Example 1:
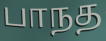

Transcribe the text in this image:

பாநத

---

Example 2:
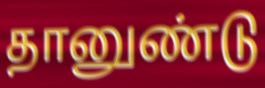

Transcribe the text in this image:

தானுண்டு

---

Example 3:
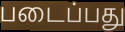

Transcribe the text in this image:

படைப்பது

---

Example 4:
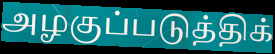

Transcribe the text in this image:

அழகுப்படுத்திக்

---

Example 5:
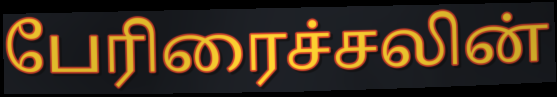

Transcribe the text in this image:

பேரிரைச்சலின்